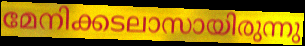
മേനിക്കടലാസായിരുന്നു